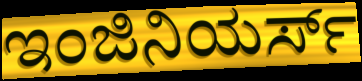
ಇಂಜಿನಿಯರ್ಸ್